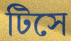
টিসে